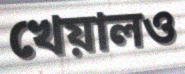
খেয়ালও